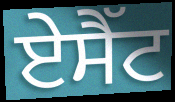
ਏਸੈੱਟ